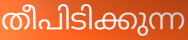
തീപിടിക്കുന്ന